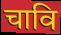
चावि